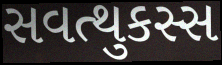
સવત્થુકસ્સ